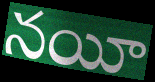
నయీ